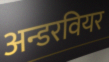
अन्डरवियर